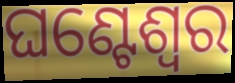
ଘଣ୍ଟେଶ୍ୱର